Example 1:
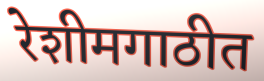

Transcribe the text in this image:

रेशीमगाठीत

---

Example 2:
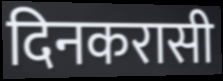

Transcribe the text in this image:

दिनकरासी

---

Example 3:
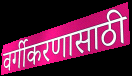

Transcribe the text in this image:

वर्गीकरणासाठी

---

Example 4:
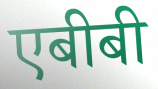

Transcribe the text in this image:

एबीबी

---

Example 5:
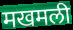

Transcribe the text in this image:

मखमली